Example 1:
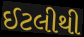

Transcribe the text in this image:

ઈટલીથી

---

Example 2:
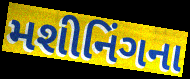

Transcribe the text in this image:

મશીનિંગના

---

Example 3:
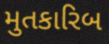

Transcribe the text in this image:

મુતકારિબ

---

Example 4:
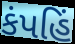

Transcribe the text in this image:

કંપહિં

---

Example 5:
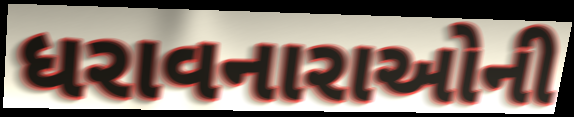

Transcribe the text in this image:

ધરાવનારાઓની